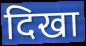
दिखा